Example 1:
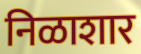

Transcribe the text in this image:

निळाशार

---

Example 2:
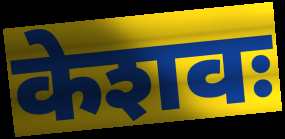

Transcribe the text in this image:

केशवः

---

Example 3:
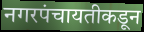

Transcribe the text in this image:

नगरपंचायतीकडून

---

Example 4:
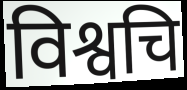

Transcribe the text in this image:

विश्वचि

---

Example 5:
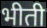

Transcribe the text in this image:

भीती